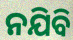
ନଯିବି